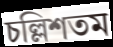
চল্লিশতম